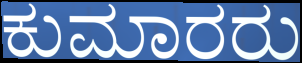
ಕುಮಾರರು